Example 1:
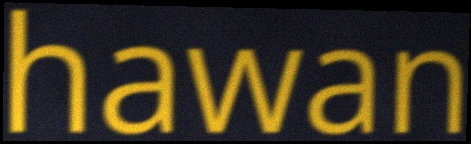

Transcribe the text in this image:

hawan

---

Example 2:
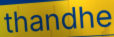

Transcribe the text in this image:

thandhe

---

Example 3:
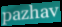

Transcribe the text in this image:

pazhav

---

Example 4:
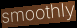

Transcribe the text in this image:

smoothly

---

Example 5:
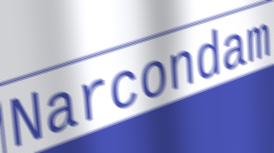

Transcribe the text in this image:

Narcondam